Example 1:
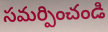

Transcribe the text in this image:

సమర్పించండి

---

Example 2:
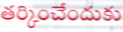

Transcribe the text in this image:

తర్కించేందుకు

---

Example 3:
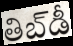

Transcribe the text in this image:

తిబ్‌డీ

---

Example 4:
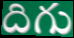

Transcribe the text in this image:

దిగు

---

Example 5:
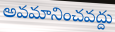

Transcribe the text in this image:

అవమానించవద్దు